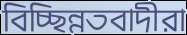
বিচ্ছিন্নতবাদীরা